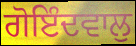
ਗੋਇੰਦਵਾਲੁ